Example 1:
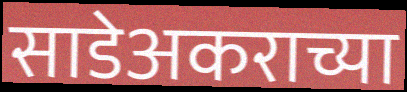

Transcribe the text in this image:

साडेअकराच्या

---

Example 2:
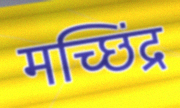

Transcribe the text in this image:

मच्छिंद्र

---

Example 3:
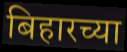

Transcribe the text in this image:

बिहारच्या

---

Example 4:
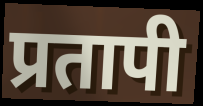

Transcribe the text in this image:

प्रतापी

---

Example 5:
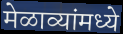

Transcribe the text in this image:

मेळाव्यांमध्ये